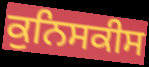
ਕੁਨਿਸਕੀਸ